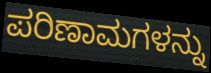
ಪರಿಣಾಮಗಳನ್ನು